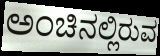
ಅಂಚಿನಲ್ಲಿರುವ